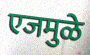
एजमुळे